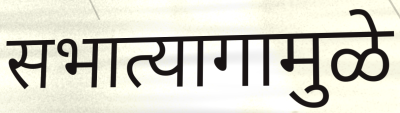
सभात्यागामुळे